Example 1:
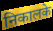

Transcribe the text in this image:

निकालके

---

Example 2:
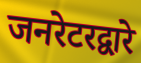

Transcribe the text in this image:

जनरेटरद्वारे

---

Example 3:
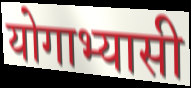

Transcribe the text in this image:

योगाभ्यासी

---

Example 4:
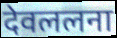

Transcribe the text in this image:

देवललना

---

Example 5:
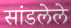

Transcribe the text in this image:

सांडलेले